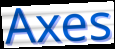
Axes